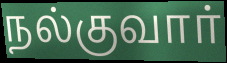
நல்குவார்